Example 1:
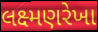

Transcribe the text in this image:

લક્ષ્મણરેખા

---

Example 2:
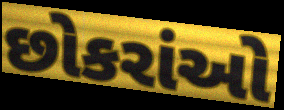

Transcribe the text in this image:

છોકરાંઓ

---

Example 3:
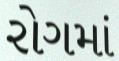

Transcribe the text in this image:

રોગમાં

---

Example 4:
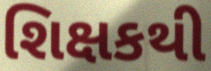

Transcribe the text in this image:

શિક્ષકથી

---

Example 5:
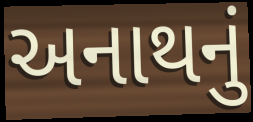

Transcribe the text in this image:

અનાથનું